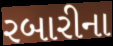
રબારીના